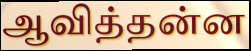
ஆவித்தன்ன